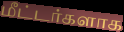
மீட்டர்களாக